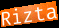
Rizta